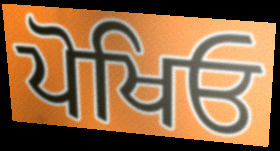
ਪੋਖਿਓ